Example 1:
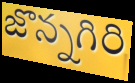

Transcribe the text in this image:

జొన్నగిరి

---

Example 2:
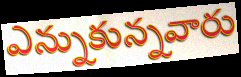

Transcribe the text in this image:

ఎన్నుకున్నవారు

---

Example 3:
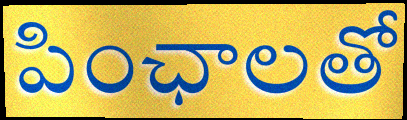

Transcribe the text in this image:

పింఛాలతో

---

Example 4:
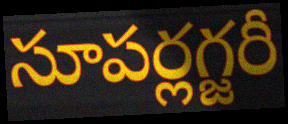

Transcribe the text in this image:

సూపర్లగ్జరీ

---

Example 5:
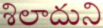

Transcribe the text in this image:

శిలాదుని